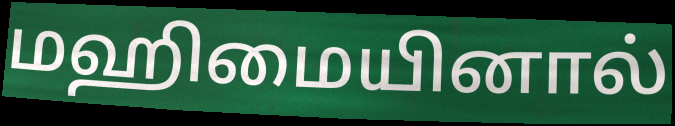
மஹிமையினால்